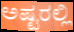
ಅಷ್ಟರಲ್ಲಿ